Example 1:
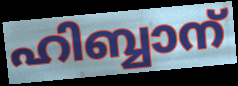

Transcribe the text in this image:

ഹിബ്ബാന്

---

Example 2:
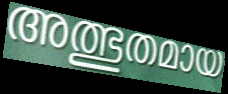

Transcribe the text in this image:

അത്ഭുതമായ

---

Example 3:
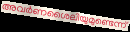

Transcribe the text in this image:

അവർണശൈലിയുമുണ്ടെന്ന്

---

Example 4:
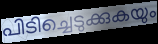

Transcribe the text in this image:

പിടിച്ചെടുക്കുകയും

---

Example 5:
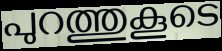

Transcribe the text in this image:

പുറത്തുകൂടെ